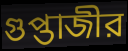
গুপ্তাজীর